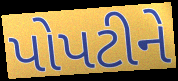
પોપટીને